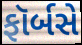
ફૉર્બસે